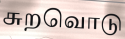
சுறவொடு